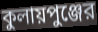
কুলায়পুঞ্জের